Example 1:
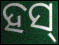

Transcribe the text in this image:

ହସ୍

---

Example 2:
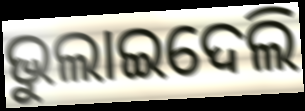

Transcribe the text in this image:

ଭୁଲାଇଦେଲି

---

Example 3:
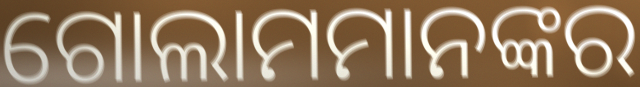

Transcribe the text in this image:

ଗୋଲାମମାନଙ୍କର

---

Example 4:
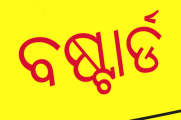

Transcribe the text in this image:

ବଷ୍ଟାର୍ଡ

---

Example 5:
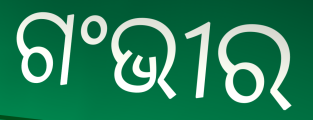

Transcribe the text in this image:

ଗଂଭୀର